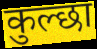
कुल्छा